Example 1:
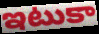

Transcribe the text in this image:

ఇటుకా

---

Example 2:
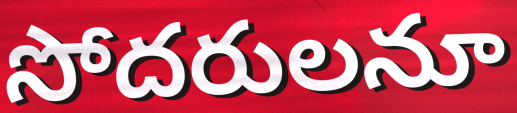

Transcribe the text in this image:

సోదరులనూ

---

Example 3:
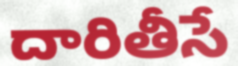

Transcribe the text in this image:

దారితీసే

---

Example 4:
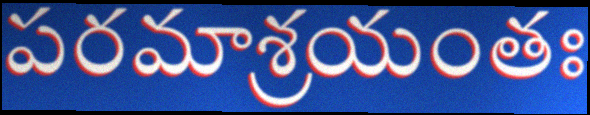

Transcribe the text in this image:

పరమాశ్రయంతః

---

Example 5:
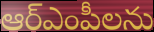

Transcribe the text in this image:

ఆర్ఎంపీలను